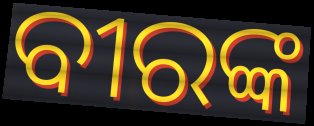
ବୀରଙ୍କ